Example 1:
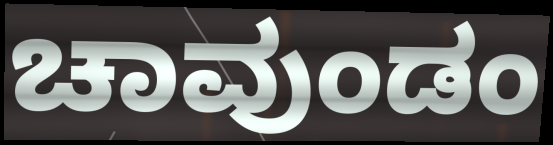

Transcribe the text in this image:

ಚಾವುಂಡಂ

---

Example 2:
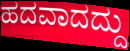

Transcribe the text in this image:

ಹದವಾದದ್ದು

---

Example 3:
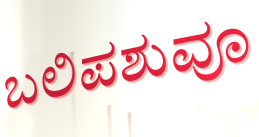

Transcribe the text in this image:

ಬಲಿಪಶುವೂ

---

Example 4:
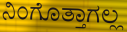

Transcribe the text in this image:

ನಿಂಗೊತ್ತಾಗಲ್ಲ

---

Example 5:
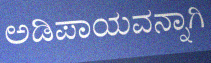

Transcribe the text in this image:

ಅಡಿಪಾಯವನ್ನಾಗಿ